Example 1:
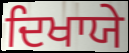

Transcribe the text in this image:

ਦਿਖਾਯੇ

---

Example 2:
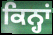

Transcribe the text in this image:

ਕਿਨ੍ਹਾਂ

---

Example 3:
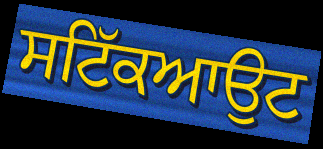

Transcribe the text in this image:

ਸਟਿੱਕਆਉਟ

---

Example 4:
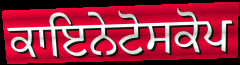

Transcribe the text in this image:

ਕਾਇਨੇਟੋਸਕੋਪ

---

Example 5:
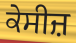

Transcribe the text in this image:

ਕੇਸੀਜ਼